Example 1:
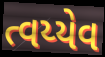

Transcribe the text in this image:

ત્વય્યેવ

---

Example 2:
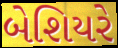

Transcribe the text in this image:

બેશિયરે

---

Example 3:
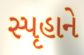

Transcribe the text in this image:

સ્પૃહાને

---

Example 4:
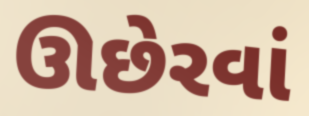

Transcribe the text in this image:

ઊછેરવાં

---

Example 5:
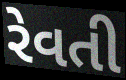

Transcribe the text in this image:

રેવતી